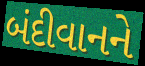
બંદીવાનને